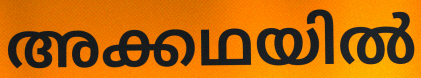
അക്കഥയിൽ